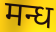
मन्ध